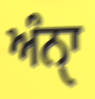
ਅੰਨੑਾ